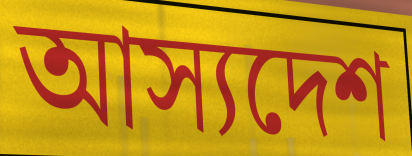
আস্যদেশ